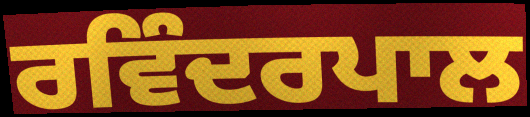
ਰਵਿੰਦਰਪਾਲ